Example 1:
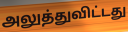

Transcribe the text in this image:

அலுத்துவிட்டது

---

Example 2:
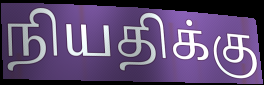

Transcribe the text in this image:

நியதிக்கு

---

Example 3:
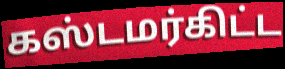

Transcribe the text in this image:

கஸ்டமர்கிட்ட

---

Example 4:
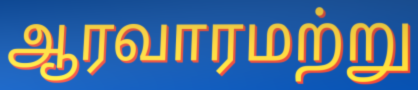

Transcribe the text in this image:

ஆரவாரமற்று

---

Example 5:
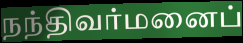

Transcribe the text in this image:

நந்திவர்மனைப்